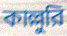
কাল্লুরি